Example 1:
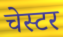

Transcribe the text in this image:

चेस्टर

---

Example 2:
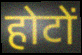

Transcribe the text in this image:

होटों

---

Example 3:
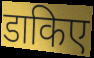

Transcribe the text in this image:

डाकिए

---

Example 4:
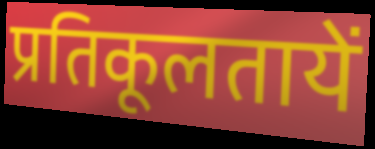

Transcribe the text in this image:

प्रतिकूलतायें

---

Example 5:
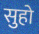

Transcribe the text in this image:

सुहो